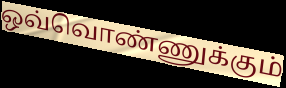
ஒவ்வொண்ணுக்கும்